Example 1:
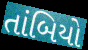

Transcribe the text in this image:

તાંબિયો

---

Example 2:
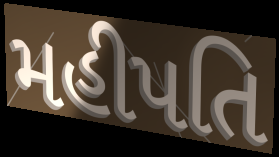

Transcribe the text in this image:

મહીપતિ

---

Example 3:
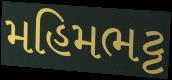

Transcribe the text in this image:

મહિમભટ્ટ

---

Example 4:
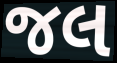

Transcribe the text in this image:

જલ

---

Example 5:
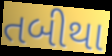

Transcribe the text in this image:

તબીથા